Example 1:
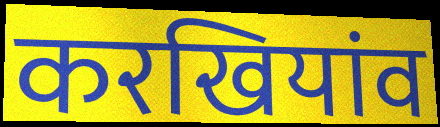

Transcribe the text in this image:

करखियांव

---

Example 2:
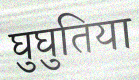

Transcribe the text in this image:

घुघुतिया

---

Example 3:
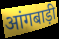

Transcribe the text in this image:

आंगबाड़ी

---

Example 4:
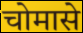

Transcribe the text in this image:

चोमासे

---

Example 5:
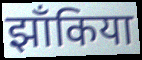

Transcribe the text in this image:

झाँकिया